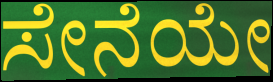
ಸೇನೆಯೇ